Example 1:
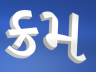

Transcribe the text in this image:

ક્રમ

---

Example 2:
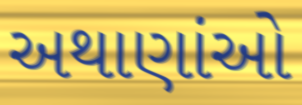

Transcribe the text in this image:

અથાણાંઓ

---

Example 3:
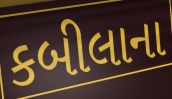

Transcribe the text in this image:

કબીલાના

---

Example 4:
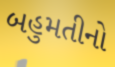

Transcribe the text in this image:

બહુમતીનો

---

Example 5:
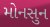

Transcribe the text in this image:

મોનસુન